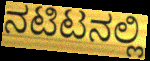
ನಟಿಟನಲ್ಲಿ